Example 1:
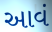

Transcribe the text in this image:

આવં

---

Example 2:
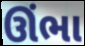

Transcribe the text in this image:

ઊંભા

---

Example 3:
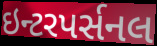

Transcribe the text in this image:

ઇન્ટરપર્સનલ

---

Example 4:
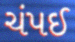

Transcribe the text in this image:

ચંપઈ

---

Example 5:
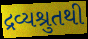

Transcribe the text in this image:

દ્રવ્યશ્રુતથી